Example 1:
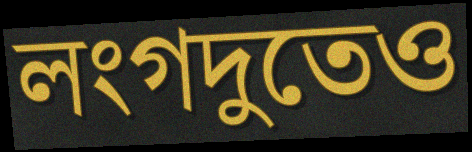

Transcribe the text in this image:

লংগদুতেও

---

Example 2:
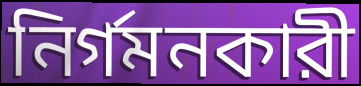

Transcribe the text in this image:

নির্গমনকারী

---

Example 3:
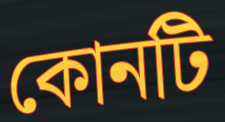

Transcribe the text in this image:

কোনটি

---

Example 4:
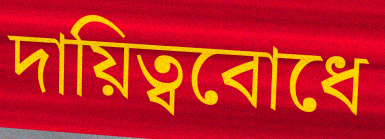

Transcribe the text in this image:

দায়িত্ববোধে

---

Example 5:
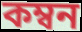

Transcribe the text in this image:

কম্বন